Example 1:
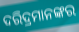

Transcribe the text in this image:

ଦରିଦ୍ରମାନଙ୍କର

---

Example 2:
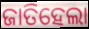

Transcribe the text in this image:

ଜାତିହେଲା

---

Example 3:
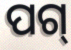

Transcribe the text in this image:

ପଗ୍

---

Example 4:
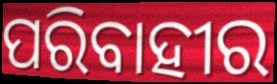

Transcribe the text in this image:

ପରିବାହୀର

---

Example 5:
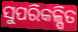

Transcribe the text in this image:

ସୁପରିକଳ୍ପିତ